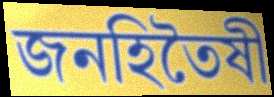
জনহিতৈষী